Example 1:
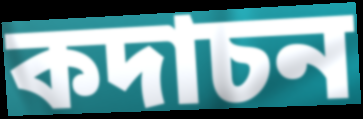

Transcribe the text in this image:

কদাচন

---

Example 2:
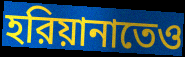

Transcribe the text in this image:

হরিয়ানাতেও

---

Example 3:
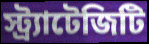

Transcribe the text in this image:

স্ট্র্যাটেজিটি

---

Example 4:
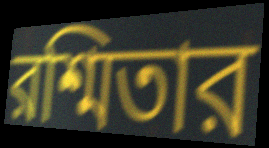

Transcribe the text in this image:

রশ্মিতার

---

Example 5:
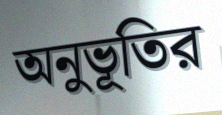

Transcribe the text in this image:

অনুভূতির